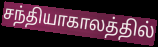
சந்தியாகாலத்தில்